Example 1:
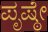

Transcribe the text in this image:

ಪೃಷ್ಠೇ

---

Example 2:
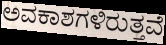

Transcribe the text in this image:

ಅವಕಾಶಗಳಿರುತ್ತವೆ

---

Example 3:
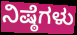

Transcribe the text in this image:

ನಿಷ್ಠೆಗಳು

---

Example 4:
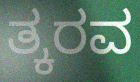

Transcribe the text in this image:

ತ್ಕರವ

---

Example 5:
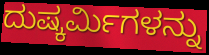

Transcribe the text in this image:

ದುಷ್ಕರ್ಮಿಗಳನ್ನು